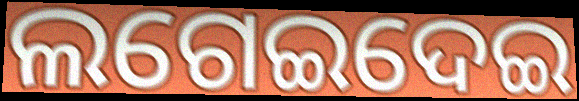
ଲଗେଇଦେଇ